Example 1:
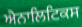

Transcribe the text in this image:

ਐਨਾਲਿਟਿਕਸ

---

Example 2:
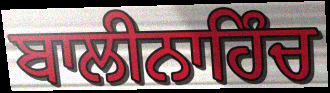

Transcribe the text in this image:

ਬਾਲੀਨਾਹਿੰਚ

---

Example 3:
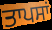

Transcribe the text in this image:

ਤਾਪਸਾਂ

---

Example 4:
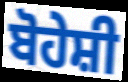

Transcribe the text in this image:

ਬੋਹੇਸ਼ੀ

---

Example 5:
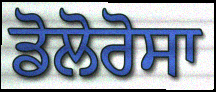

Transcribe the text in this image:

ਡੋਲੋਰੋਸਾ